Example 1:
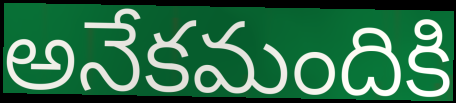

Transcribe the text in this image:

అనేకమందికి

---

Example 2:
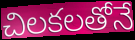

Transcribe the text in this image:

చిలకలతోనే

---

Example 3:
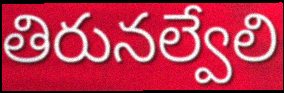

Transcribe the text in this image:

తిరునల్వేలి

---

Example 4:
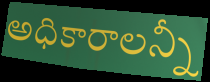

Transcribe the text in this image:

అధికారాలన్నీ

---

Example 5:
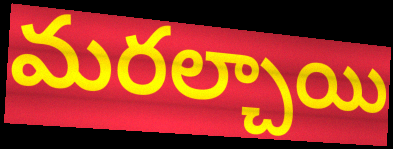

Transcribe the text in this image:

మరల్చాయి